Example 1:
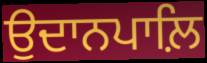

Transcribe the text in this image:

ਉਦਾਨਪਾਲ਼ਿ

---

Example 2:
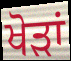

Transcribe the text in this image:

ਖੋੜਾਂ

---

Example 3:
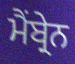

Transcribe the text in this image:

ਮੈਂਬ੍ਰੇਨ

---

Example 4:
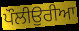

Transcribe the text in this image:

ਪੌਲੀਉਰੀਆ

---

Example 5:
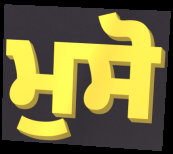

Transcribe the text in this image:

ਮੁਸੋ